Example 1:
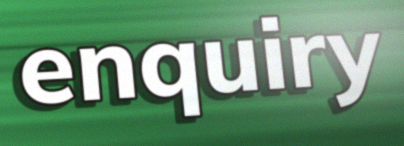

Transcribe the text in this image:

enquiry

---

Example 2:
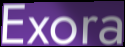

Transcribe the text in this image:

Exora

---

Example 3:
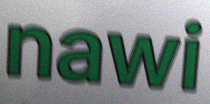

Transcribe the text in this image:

nawi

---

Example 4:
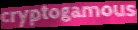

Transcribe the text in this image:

cryptogamous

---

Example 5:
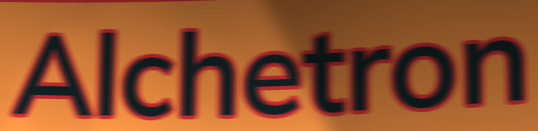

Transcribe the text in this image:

Alchetron